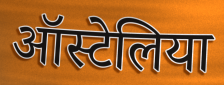
ऑस्टेलिया